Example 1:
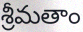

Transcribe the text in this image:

శ్రీమతాం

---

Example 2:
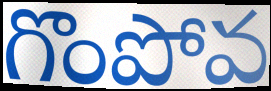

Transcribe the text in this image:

గొంపోవ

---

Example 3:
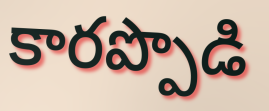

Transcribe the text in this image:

కారప్పొడి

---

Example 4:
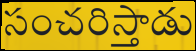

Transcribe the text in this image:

సంచరిస్తాడు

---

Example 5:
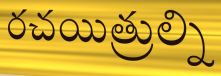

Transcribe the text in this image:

రచయిత్రుల్ని